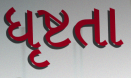
ધૃષ્ટતા